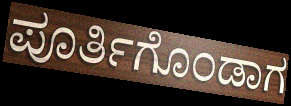
ಪೂರ್ತಿಗೊಂಡಾಗ